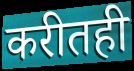
करीतही